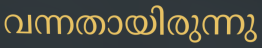
വന്നതായിരുന്നു